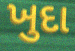
ખુદા